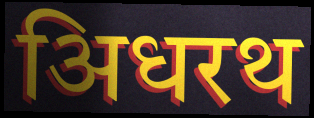
अिधरथ